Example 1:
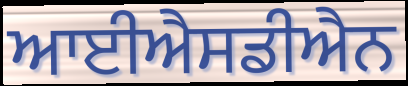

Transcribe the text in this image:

ਆਈਐਸਡੀਐਨ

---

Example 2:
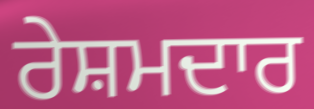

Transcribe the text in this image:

ਰੇਸ਼ਮਦਾਰ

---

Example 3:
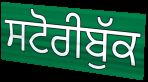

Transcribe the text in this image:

ਸਟੋਰੀਬੁੱਕ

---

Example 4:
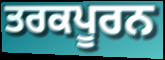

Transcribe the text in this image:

ਤਰਕਪੂਰਨ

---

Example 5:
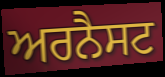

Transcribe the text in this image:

ਅਰਨੈਸਟ